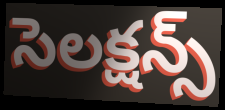
సెలక్షన్స్